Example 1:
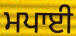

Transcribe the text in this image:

ਮਪਾਈ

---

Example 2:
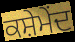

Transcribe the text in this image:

ਕਸ਼ੇਮੇਂਦ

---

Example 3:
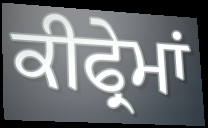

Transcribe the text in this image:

ਕੀਫ੍ਰੇਮਾਂ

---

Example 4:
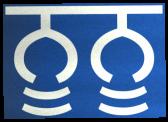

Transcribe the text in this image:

ਨੂਨੂ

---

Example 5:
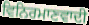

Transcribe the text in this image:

ਵਿਨਿਰਮਾਣਵਾਦੀ